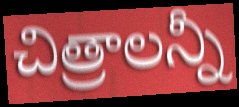
చిత్రాలన్నీ